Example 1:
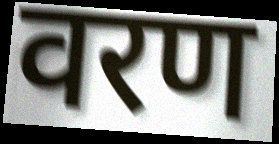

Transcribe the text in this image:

वरण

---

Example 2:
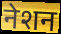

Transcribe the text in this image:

नेशन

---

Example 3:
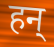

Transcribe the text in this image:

हन्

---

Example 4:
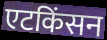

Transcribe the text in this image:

एटकिंसन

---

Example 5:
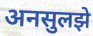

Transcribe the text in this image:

अनसुलझे